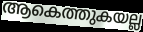
ആകെത്തുകയല്ല